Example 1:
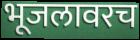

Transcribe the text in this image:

भूजलावरच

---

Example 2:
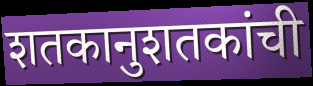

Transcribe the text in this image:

शतकानुशतकांची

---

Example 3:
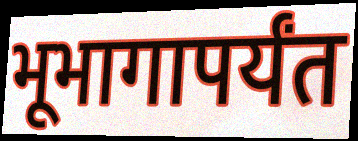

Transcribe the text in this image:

भूभागापर्यंत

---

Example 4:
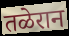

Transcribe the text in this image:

तळेरान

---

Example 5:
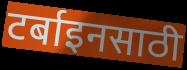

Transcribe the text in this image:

टर्बाइनसाठी